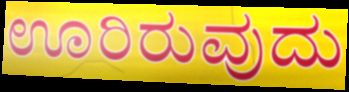
ಊರಿರುವುದು